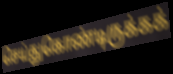
செய்துகொண்டிருக்கக்